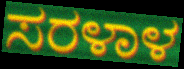
ಸರಳಾಳ